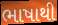
ભાષાથી